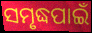
ସମୃଦ୍ଧପାଇଁ